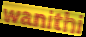
wanithi